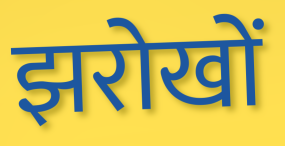
झरोखों